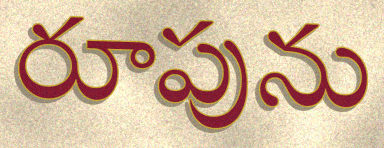
రూపును